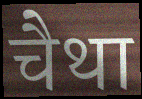
चैथा